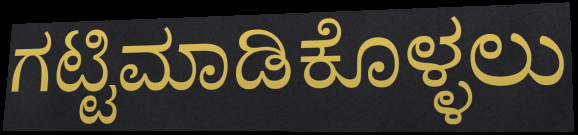
ಗಟ್ಟಿಮಾಡಿಕೊಳ್ಳಲು